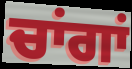
ਚਾਂਗਾਂ